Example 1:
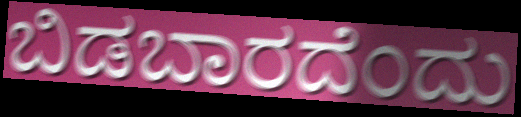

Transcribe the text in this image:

ಬಿಡಬಾರದೆಂದು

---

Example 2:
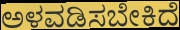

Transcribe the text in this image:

ಅಳವಡಿಸಬೇಕಿದೆ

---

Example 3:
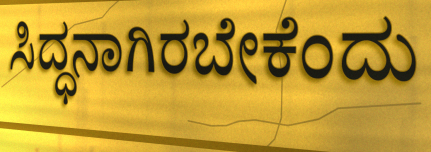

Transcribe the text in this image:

ಸಿದ್ಧನಾಗಿರಬೇಕೆಂದು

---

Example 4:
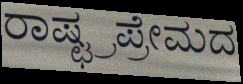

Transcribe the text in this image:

ರಾಷ್ಟ್ರಪ್ರೇಮದ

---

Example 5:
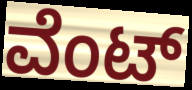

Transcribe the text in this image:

ವೆಂಟ್